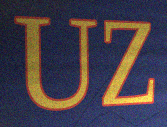
UZ